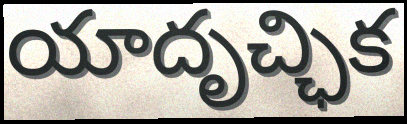
యాదృచ్ఛిక